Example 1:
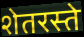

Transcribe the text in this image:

शेतरस्ते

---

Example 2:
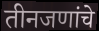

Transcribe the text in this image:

तीनजणांचे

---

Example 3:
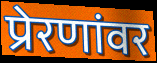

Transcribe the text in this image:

प्रेरणांवर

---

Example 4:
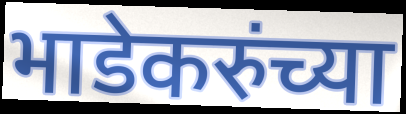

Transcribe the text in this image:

भाडेकरुंच्या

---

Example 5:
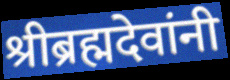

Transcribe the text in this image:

श्रीब्रह्मदेवांनी